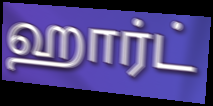
ஹார்ட்